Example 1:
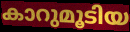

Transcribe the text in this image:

കാറുമൂടിയ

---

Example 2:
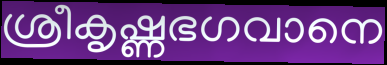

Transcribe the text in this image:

ശ്രീകൃഷ്ണഭഗവാനെ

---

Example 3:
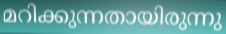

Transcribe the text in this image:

മറിക്കുന്നതായിരുന്നു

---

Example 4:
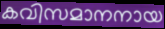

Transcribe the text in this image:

കവിസമാനനായ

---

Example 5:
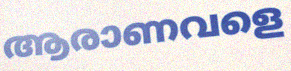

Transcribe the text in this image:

ആരാണവളെ